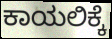
ಕಾಯಲಿಕ್ಕೆ